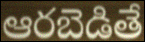
ఆరబెడితే